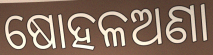
ଷୋହଳଅଣା